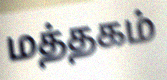
மத்தகம்